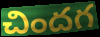
చిందగ